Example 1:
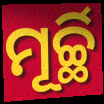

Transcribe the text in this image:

ମୂର୍ଚ୍ଛି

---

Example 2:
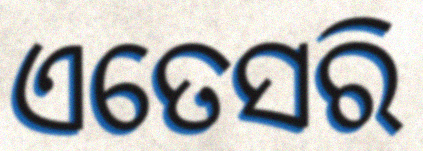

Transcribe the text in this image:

ଏତେସରି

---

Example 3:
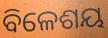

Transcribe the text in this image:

ବିଳେଶୟ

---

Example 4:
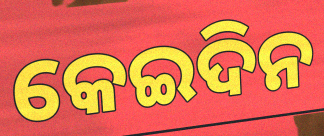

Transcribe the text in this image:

କେଇଦିନ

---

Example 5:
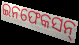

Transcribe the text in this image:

ଇନଫେକସନ୍